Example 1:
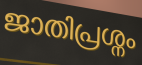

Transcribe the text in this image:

ജാതിപ്രശ്നം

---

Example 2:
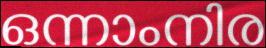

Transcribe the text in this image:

ഒന്നാംനിര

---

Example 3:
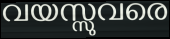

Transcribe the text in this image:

വയസ്സുവരെ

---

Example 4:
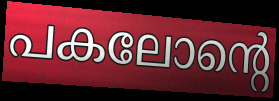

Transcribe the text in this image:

പകലോന്റെ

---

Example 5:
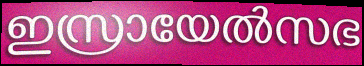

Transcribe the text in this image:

ഇസ്രായേൽസഭ